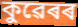
কুৱেৰৰ